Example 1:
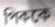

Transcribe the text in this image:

পিককে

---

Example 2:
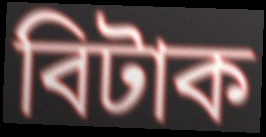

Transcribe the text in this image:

বিটাক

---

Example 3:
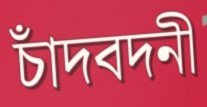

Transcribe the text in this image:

চাঁদবদনী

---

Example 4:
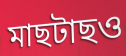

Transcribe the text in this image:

মাছটাছও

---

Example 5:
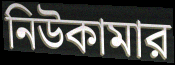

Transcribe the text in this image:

নিউকামার